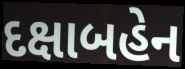
દક્ષાબહેન